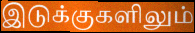
இடுக்குகளிலும்